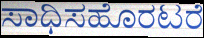
ಸಾಧಿಸಹೊರಟರೆ